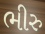
ભીરુ